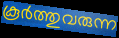
കൂർത്തുവരുന്ന